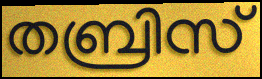
തബ്രിസ്